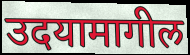
उदयामागील